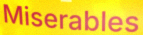
Miserables